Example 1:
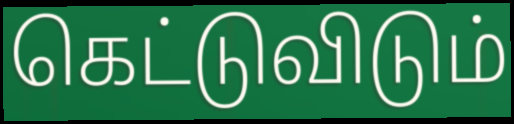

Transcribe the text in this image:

கெட்டுவிடும்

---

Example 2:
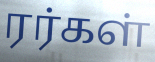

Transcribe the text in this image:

ரர்கள்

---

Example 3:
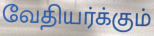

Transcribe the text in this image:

வேதியர்க்கும்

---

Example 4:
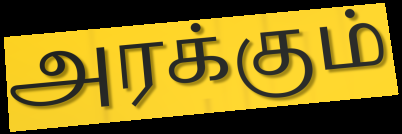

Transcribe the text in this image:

அரக்கும்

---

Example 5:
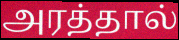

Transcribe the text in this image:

அரத்தால்